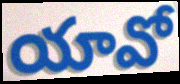
యావో